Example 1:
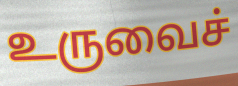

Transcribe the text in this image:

உருவைச்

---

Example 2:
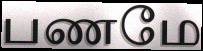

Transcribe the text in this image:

பணமே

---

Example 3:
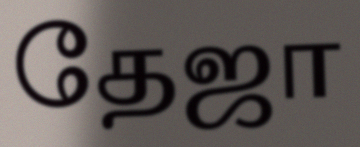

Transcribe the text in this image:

தேஜா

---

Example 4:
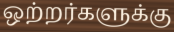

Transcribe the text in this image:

ஒற்றர்களுக்கு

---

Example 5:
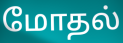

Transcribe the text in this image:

மோதல்